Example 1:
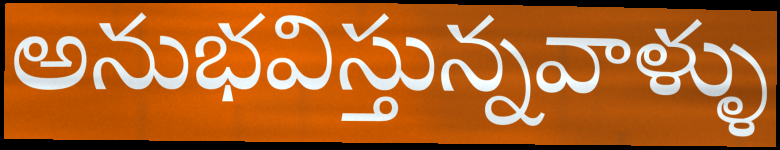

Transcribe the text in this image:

అనుభవిస్తున్నవాళ్ళు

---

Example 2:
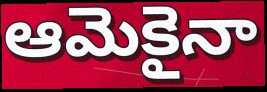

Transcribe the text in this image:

ఆమెకైనా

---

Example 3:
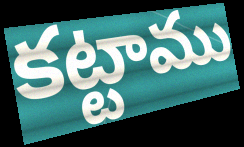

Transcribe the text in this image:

కట్టాము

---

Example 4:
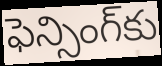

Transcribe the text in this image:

ఫెన్సింగ్‌కు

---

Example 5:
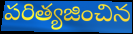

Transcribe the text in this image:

పరిత్యజించిన